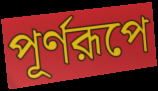
পূর্ণরূপে